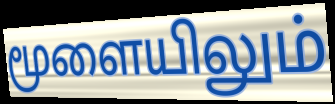
மூளையிலும்